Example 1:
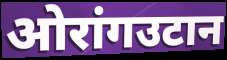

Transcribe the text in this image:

ओरांगउटान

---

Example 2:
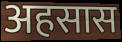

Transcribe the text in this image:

अहसास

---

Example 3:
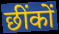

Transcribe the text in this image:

छींकों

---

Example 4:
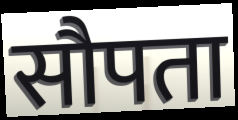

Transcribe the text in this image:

सौपता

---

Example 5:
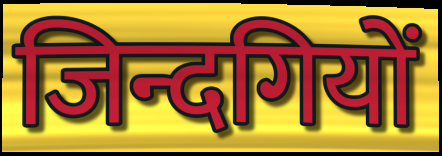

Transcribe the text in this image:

जिन्दगियों